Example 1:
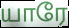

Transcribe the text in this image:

யாரே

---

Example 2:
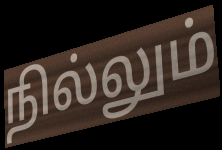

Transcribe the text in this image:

நில்லும்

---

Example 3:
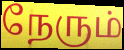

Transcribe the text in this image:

நேரும்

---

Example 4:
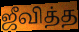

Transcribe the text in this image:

ஜீவித்த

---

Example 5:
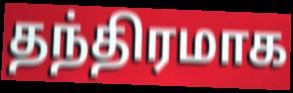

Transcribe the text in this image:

தந்திரமாக